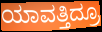
ಯಾವತ್ತಿದ್ರೂ